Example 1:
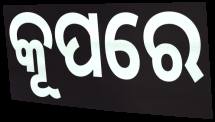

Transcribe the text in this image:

କୂପରେ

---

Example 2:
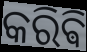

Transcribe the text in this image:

କରିଵି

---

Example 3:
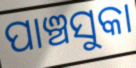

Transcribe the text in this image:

ପାଞ୍ଚସୁକା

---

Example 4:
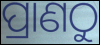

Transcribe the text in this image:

ପ୍ରାଣଠୁ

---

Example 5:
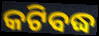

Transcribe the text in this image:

କଟିବଦ୍ଧ